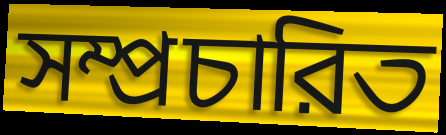
সম্প্রচারিত